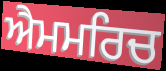
ਐਮਮਰਿਚ